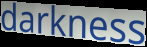
darkness